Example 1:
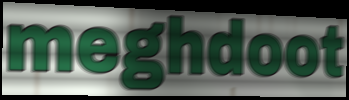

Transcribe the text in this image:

meghdoot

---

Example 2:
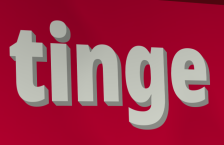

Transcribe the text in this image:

tinge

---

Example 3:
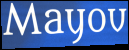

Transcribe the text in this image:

Mayou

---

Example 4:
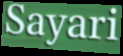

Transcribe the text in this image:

Sayari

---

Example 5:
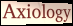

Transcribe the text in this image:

Axiology